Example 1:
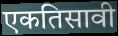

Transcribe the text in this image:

एकतिसावी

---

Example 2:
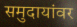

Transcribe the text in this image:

समुदायांवर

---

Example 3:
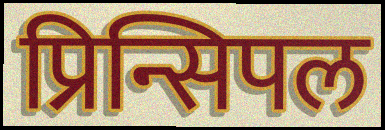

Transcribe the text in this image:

प्रिन्सिपल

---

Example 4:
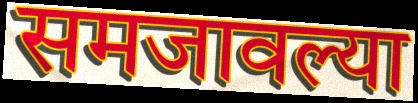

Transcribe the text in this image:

समजावल्या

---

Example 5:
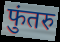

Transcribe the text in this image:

फुंतरु